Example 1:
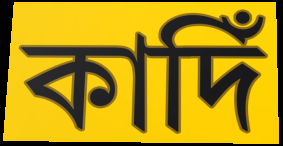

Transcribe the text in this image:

কাদিঁ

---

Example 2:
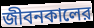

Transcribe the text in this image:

জীবনকালের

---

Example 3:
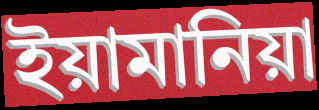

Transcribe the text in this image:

ইয়ামানিয়া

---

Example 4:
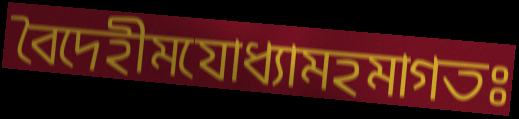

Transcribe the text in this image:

বৈদেহীমযোধ্যামহমাগতঃ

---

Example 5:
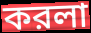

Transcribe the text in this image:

করলা